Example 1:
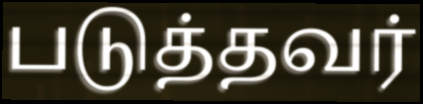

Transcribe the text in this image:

படுத்தவர்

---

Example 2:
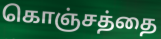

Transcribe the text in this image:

கொஞ்சத்தை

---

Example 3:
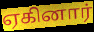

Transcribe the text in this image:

ஏகினார்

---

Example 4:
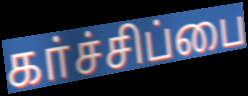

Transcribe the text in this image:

கர்ச்சிப்பை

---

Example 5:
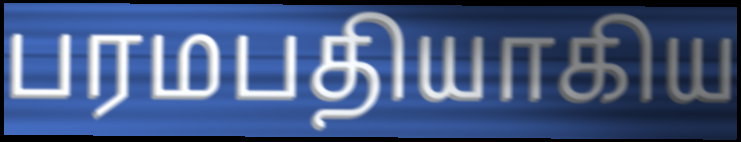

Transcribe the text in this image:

பரமபதியாகிய